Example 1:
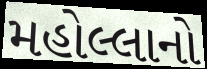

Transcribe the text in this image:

મહોલ્લાનો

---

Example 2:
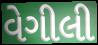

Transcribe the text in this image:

વેગીલી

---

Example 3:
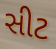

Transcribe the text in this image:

સીટ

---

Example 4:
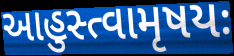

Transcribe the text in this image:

આહુસ્ત્વામૃષયઃ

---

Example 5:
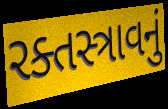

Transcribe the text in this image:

રક્તસ્ત્રાવનું